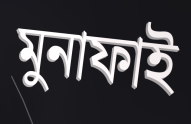
মুনাফাই